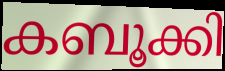
കബൂക്കി